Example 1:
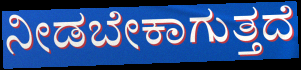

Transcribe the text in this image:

ನೀಡಬೇಕಾಗುತ್ತದೆ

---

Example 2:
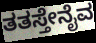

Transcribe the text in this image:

ತತಸ್ತೇನೈವ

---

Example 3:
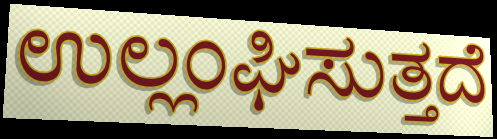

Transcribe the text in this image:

ಉಲ್ಲಂಘಿಸುತ್ತದೆ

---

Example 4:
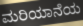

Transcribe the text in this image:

ಮರಿಯಾನೆಯ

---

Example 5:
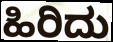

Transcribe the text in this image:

ಹಿರಿದು